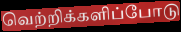
வெற்றிக்களிப்போடு